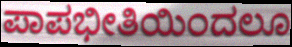
ಪಾಪಭೀತಿಯಿಂದಲೂ